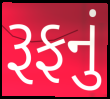
રૂફનું